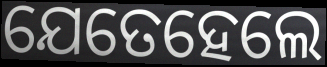
ଯେତେହେଲେ